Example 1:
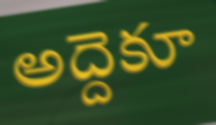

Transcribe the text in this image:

అద్దెకూ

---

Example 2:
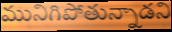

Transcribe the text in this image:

మునిగిపోతున్నాడని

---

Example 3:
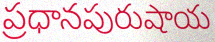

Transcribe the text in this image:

ప్రధానపురుషాయ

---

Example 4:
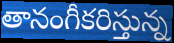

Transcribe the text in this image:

తానంగీకరిస్తున్న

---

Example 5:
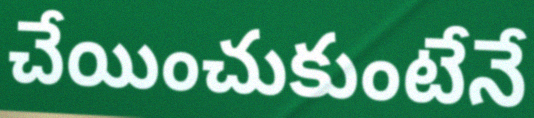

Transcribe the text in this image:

చేయించుకుంటేనే